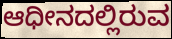
ಆಧೀನದಲ್ಲಿರುವ